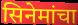
सिनेमांचा